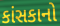
કાંસકાનો